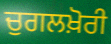
ਚੁਗਲਖ਼ੋਰੀ